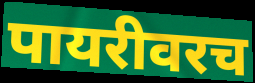
पायरीवरच